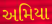
અમિયા